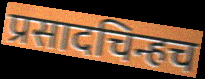
प्रसादचिन्हच